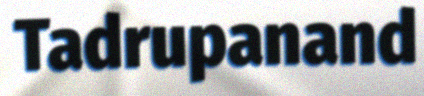
Tadrupanand